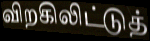
விறகிலிட்டுத்